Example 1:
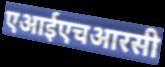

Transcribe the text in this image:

एआईएचआरसी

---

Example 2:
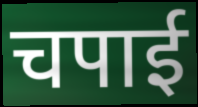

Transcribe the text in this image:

चपाई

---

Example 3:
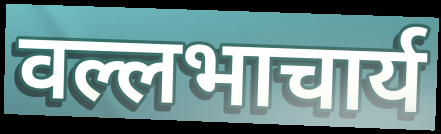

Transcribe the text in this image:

वल्लभाचार्य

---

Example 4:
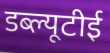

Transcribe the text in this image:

डब्ल्यूटीई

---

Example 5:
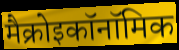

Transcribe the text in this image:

मैक्रोइकॉनॉमिक